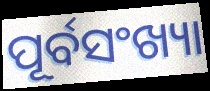
ପୂର୍ବସଂଖ୍ୟା